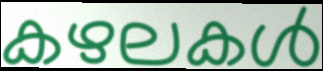
കഴലകൾ